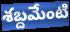
శబ్దమేంటి